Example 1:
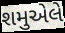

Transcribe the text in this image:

શમુએલે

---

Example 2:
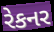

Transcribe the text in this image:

રેકનર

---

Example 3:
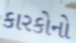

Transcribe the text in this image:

કારકોનો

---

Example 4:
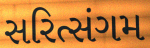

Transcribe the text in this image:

સરિત્સંગમ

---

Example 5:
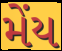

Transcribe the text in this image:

મેંય